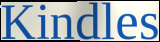
Kindles